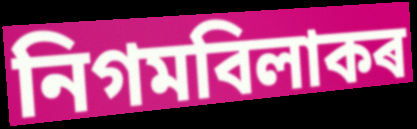
নিগমবিলাকৰ